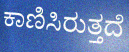
ಕಾಣಿಸಿರುತ್ತದೆ